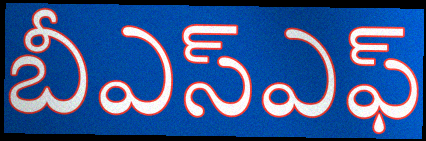
బీఎస్ఎఫ్